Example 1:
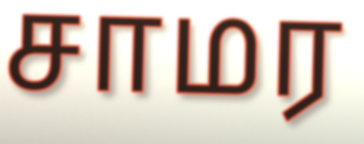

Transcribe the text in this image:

சாமர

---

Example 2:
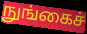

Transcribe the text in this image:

நுங்கைச்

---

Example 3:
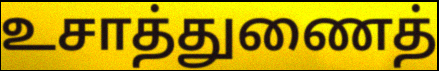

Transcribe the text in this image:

உசாத்துணைத்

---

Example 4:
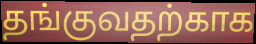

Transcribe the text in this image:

தங்குவதற்காக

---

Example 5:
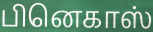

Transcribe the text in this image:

பினெகாஸ்